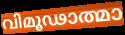
വിമൂഢാത്മാ